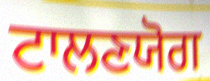
ਟਾਲਣਯੋਗ